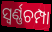
ସ୍ୱର୍ଣ୍ଣଚମ୍ପା